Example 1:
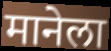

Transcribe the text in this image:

मानेला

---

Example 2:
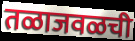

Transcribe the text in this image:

तळाजवळची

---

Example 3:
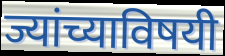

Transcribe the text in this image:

ज्यांच्याविषयी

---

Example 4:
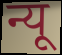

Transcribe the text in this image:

न्यू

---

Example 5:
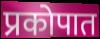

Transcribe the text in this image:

प्रकोपात